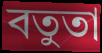
বতুতা